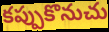
కప్పుకొనుచు